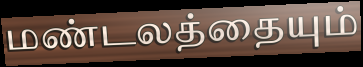
மண்டலத்தையும்